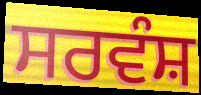
ਸਰਵੰਸ਼